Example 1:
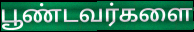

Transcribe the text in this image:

பூண்டவர்களை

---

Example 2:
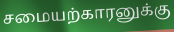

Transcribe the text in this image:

சமையற்காரனுக்கு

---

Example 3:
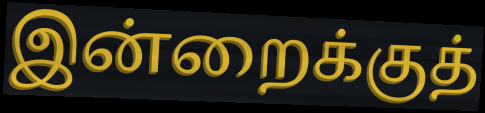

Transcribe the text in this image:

இன்றைக்குத்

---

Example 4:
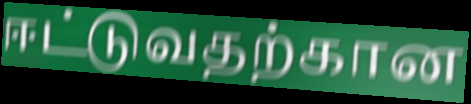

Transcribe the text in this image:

ஈட்டுவதற்கான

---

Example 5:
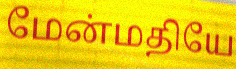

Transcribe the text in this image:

மேன்மதியே